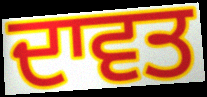
ਦਾਵਤ